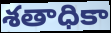
శతాధికా